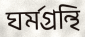
ঘর্মগ্রন্থি